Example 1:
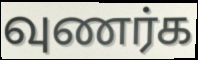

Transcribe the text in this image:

வுணர்க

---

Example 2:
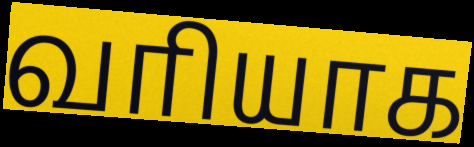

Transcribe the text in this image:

வரியாக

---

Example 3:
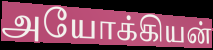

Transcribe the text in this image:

அயோக்கியன்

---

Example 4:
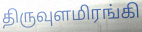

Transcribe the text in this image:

திருவுளமிரங்கி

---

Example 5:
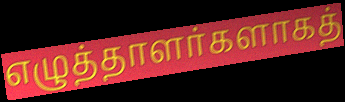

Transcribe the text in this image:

எழுத்தாளர்களாகத்